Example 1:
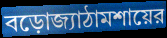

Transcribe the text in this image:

বড়োজ্যাঠামশায়ের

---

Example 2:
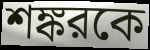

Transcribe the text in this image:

শঙ্করকে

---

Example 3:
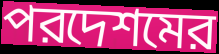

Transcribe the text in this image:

পরদেশমের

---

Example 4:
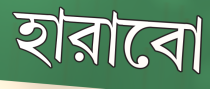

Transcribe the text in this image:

হারাবো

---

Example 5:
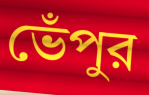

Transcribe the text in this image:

ভেঁপুর